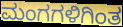
ಮಂಗಗಳಿಗಿಂತ